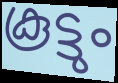
കൂട്ടും